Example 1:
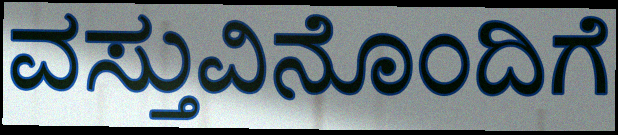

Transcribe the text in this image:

ವಸ್ತುವಿನೊಂದಿಗೆ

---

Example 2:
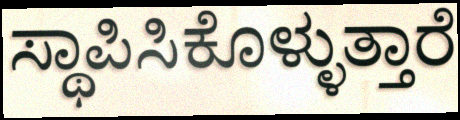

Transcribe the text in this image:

ಸ್ಥಾಪಿಸಿಕೊಳ್ಳುತ್ತಾರೆ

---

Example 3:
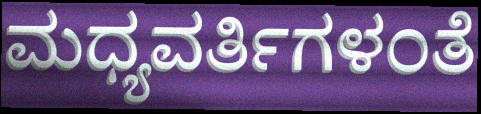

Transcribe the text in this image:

ಮಧ್ಯವರ್ತಿಗಳಂತೆ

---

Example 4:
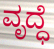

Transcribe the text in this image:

ವೃದ್ಧೆ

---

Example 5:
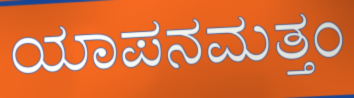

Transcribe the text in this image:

ಯಾಪನಮತ್ತಂ